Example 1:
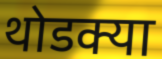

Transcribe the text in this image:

थोडक्या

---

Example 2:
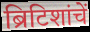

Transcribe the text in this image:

ब्रिटिशांचें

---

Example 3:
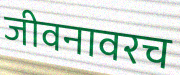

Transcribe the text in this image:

जीवनावरच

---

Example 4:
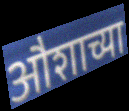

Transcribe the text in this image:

औशाच्या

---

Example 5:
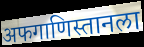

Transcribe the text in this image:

अफगाणिस्तानला